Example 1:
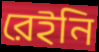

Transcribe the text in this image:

রেইনি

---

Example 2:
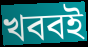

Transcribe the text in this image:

খববই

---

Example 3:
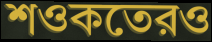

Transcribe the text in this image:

শওকতেরও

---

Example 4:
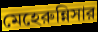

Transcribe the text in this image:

মেহেরুন্নিসার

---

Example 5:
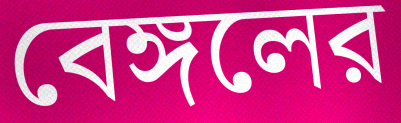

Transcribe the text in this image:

বেঙ্গলের